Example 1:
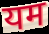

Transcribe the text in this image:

यम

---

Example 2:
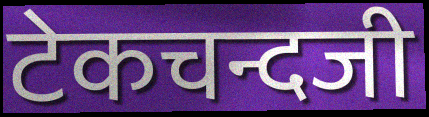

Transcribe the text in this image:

टेकचन्दजी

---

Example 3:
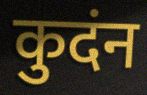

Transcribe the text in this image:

कुदंन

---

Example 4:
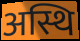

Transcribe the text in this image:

अस्थि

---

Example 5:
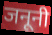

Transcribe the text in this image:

जनूनी